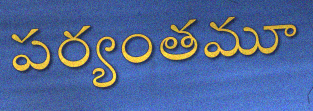
పర్యంతమూ